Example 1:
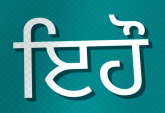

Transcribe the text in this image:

ਇਹੌ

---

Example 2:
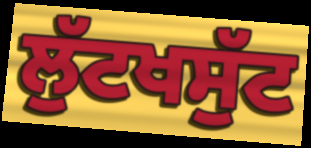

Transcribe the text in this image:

ਲੁੱਟਖਸੁੱਟ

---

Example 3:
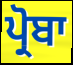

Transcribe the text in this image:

ਪ੍ਰੋਬਾ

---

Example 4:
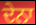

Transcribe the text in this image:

ਦੇਨਾ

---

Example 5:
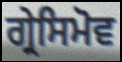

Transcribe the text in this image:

ਗ੍ਰੇਸਿਮੋਵ